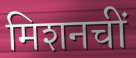
मिशनचीं